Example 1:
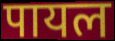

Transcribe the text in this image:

पायल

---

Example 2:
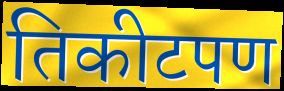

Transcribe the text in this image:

तिकीटपण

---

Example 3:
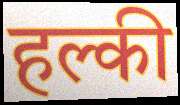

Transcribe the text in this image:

हल्की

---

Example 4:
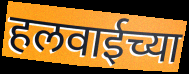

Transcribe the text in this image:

हलवाईच्या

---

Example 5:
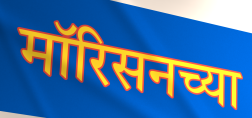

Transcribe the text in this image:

मॉरिसनच्या